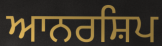
ਆਨਰਸ਼ਿਪ